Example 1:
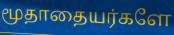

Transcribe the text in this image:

மூதாதையர்களே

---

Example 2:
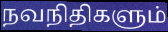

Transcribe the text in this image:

நவநிதிகளும்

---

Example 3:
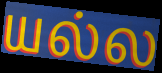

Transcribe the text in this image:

யல்ல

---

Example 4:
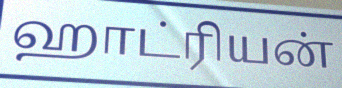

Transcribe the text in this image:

ஹாட்ரியன்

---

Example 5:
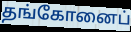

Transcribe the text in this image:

தங்கோனைப்